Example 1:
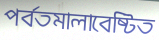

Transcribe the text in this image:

পর্বতমালাবেষ্টিত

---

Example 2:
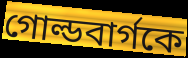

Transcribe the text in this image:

গোল্ডবার্গকে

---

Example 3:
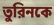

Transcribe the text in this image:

তুরিনকে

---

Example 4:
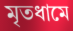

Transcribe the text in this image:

মৃতধামে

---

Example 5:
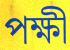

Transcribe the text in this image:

পক্ষী